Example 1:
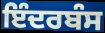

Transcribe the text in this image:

ਇੰਦਰਬੰਸ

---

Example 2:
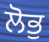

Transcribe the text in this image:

ਲੋਭੁ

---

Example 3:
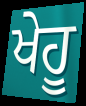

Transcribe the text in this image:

ਖੇਹੂ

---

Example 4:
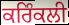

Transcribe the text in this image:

ਕਰਿੰਕਲੀ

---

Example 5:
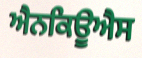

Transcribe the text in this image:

ਐਨਕਿਊਐਸ